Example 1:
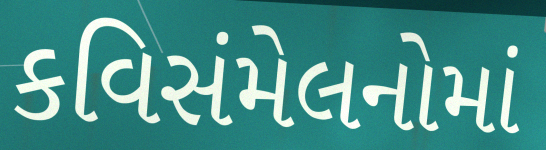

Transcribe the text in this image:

કવિસંમેલનોમાં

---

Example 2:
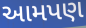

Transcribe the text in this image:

આમપણ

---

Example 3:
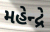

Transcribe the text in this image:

મહેન્દ્રે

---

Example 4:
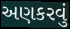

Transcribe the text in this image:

અણકરવું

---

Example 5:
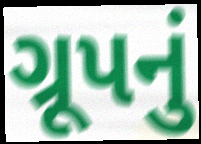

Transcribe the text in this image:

ગ્રૂપનું